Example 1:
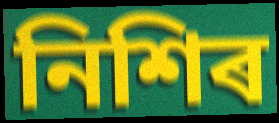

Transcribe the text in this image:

নিশিৰ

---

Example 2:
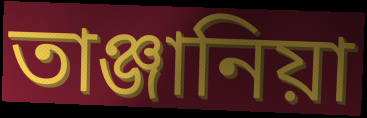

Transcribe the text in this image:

তাঞ্জানিয়া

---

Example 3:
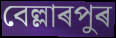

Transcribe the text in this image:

বেল্লাৰপুৰ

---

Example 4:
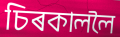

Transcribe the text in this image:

চিৰকাললৈ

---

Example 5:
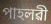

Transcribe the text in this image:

পাহলৱী